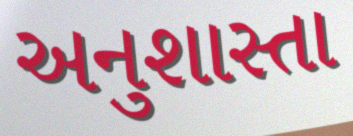
અનુશાસ્તા